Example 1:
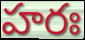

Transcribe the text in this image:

హరః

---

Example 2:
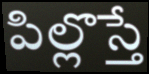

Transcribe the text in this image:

పిల్లొస్తే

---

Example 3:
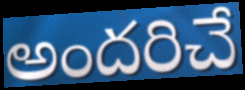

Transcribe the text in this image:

అందరిచే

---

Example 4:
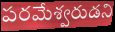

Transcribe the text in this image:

పరమేశ్వరుడని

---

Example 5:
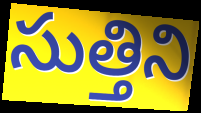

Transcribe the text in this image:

సుత్తిని